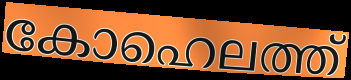
കോഹെലത്ത്